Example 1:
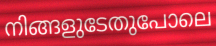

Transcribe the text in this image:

നിങ്ങളുടേതുപോലെ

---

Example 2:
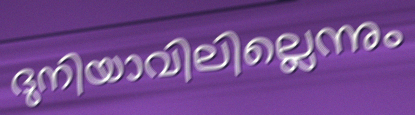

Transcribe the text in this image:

ദുനിയാവിലില്ലെന്നും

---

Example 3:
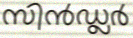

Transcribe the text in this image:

സിൻഡ്ലർ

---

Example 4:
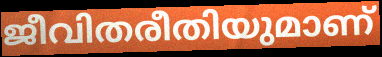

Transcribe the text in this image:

ജീവിതരീതിയുമാണ്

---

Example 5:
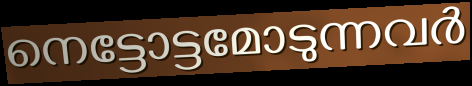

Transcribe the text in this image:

നെട്ടോട്ടമോടുന്നവർ